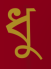
ধু